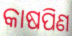
କାଷପିଣ